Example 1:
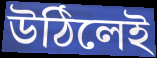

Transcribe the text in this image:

উঠিলেই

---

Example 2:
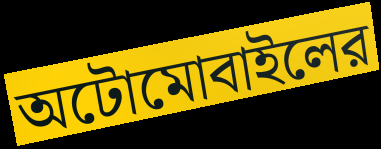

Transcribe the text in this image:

অটোমোবাইলের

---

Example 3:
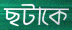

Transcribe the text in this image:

ছটাকে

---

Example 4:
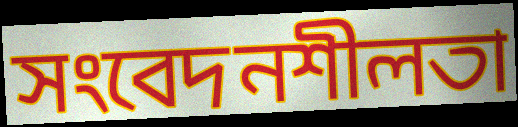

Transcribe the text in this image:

সংবেদনশীলতা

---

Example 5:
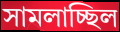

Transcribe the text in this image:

সামলাচ্ছিল